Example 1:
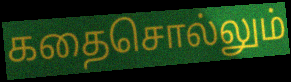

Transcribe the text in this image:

கதைசொல்லும்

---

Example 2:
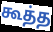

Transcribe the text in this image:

கூத்த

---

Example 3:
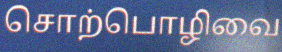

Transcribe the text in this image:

சொற்பொழிவை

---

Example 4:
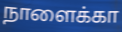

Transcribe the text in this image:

நாளைக்கா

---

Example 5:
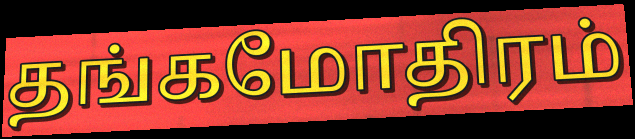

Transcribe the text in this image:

தங்கமோதிரம்